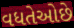
વધતેઓછે